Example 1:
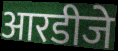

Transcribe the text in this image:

आरडीजे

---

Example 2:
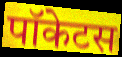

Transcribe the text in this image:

पॉकेटस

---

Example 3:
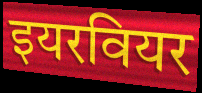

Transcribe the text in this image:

इयरवियर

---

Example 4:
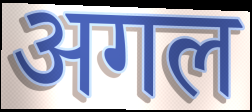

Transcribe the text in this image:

अगल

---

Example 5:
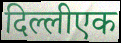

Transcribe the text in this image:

दिल्लीएक